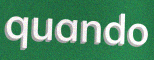
quando